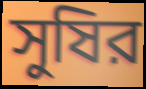
সুষির